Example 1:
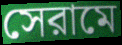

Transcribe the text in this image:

সেরামে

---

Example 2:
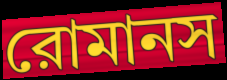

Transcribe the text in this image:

রোমানস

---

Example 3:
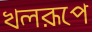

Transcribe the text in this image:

খলরূপে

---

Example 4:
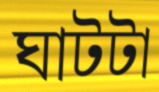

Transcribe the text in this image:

ঘাটটা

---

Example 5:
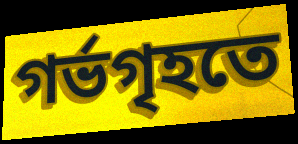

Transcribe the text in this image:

গর্ভগৃহতে